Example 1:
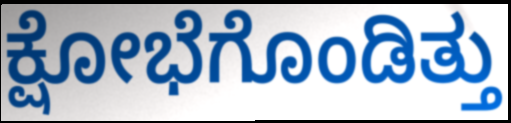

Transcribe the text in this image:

ಕ್ಷೋಭೆಗೊಂಡಿತ್ತು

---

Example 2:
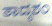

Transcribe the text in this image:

ತಾದೃಶಂ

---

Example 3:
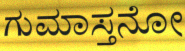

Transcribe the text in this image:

ಗುಮಾಸ್ತನೋ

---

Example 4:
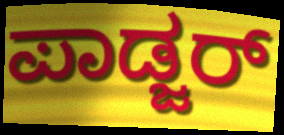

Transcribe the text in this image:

ಪಾಡ್ಜರ್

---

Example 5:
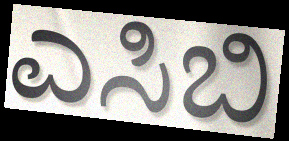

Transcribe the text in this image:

ಎಸಿಬಿ